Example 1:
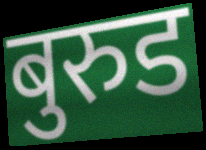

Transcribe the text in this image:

बुरुड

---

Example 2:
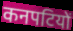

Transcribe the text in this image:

कनपटियों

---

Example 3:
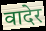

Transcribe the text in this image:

वादेर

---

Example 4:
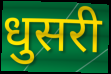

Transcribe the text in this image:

धुसरी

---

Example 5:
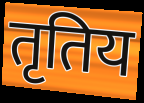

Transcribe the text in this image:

तृतिय